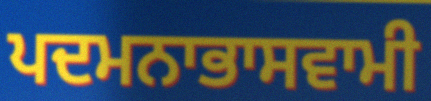
ਪਦਮਨਾਭਾਸਵਾਮੀ